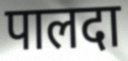
पालदा